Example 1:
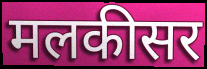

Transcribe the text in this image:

मलकीसर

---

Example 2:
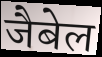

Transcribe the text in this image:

जैबेल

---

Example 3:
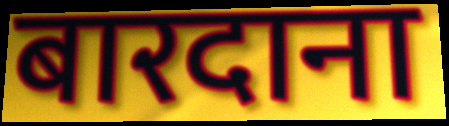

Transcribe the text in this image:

बारदाना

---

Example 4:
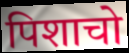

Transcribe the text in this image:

पिशाचो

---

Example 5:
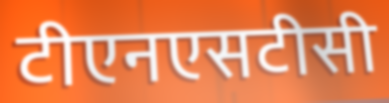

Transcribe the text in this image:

टीएनएसटीसी